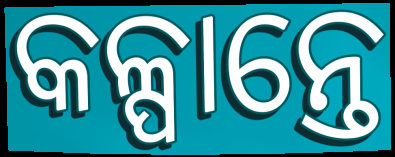
କଳ୍ପାନ୍ତେ